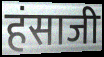
हंसाजी